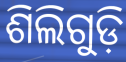
ଶିଲିଗୁଡ଼ି